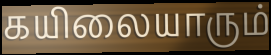
கயிலையாரும்